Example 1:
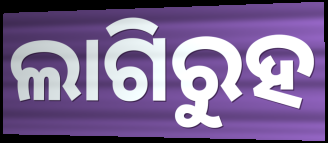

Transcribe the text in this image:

ଲାଗିରୁହ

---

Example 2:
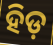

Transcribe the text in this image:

ହିଡ଼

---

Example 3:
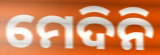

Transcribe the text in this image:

ମେଦିନି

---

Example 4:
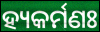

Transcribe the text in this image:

ହ୍ୟକର୍ମଣଃ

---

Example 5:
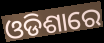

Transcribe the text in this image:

ଓଡିଶାରେ